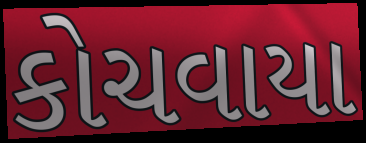
કોચવાયા